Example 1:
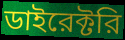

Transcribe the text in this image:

ডাইরেক্টরি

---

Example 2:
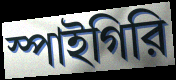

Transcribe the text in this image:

স্পাইগিরি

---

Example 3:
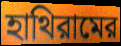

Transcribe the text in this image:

হাথিরামের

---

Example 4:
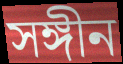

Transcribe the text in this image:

সঙ্গীন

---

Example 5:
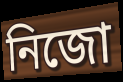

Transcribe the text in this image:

নিজো